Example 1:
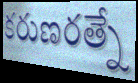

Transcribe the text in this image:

కరుణరత్నే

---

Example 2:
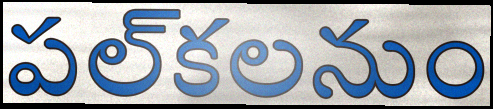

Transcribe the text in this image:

పల్‌కలనుం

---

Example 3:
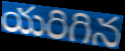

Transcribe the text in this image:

యరిగిన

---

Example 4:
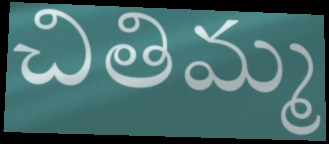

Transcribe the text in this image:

చితిమ్మ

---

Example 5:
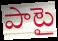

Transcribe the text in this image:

పాటై